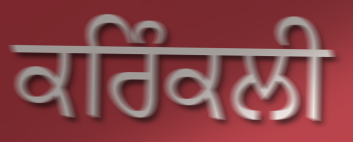
ਕਰਿੰਕਲੀ